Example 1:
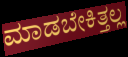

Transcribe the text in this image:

ಮಾಡಬೇಕಿತ್ತಲ್ಲ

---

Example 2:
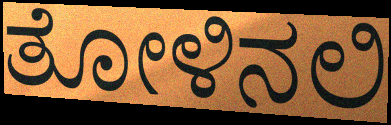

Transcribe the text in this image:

ತೋಳಿನಲಿ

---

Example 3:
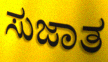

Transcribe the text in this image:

ಸುಜಾತ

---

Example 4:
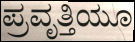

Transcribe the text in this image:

ಪ್ರವೃತ್ತಿಯೂ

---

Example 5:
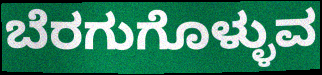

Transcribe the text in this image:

ಬೆರಗುಗೊಳ್ಳುವ